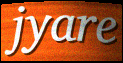
jyare